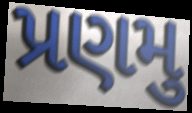
પ્રણમુ